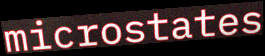
microstates